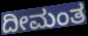
ದೀಮಂತ